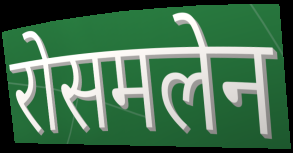
रोसमलेन